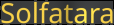
Solfatara